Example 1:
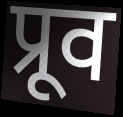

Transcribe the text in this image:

प्रूव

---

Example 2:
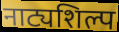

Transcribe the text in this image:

नाट्यशिल्प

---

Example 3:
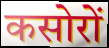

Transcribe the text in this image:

कसोरों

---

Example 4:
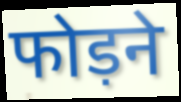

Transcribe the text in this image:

फोड़ने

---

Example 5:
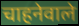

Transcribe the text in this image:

चाहनेवाले